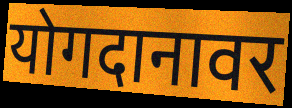
योगदानावर